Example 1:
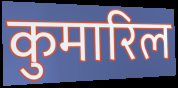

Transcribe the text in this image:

कुमारिल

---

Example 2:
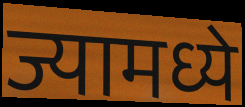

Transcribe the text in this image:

ज्यामध्ये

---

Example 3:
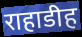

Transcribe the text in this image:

राहाडीह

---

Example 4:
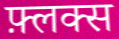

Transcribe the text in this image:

फ़्लक्स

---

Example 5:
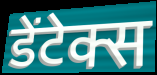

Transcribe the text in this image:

डेंटेक्स